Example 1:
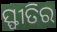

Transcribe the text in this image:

ସ୍ଫୀତିର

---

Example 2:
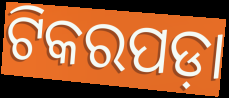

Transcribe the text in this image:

ଟିକରପଡ଼ା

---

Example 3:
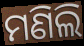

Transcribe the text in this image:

ମଣିଲି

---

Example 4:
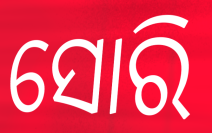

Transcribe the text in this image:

ସୋରି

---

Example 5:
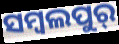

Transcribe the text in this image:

ସମ୍ବଲପୁର୍